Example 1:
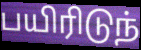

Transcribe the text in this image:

பயிரிடுந்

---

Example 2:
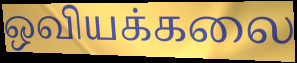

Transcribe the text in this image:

ஒவியக்கலை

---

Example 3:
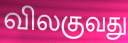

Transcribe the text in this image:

விலகுவது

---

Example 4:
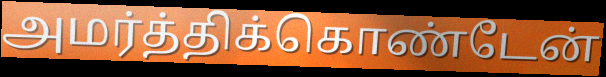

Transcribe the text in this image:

அமர்த்திக்கொண்டேன்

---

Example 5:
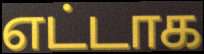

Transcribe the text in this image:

எட்டாக